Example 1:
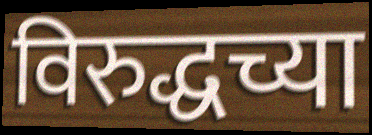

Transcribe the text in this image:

विरुद्धच्या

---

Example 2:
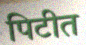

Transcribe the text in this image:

पिटीत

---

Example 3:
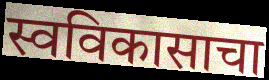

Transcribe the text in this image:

स्वविकासाचा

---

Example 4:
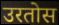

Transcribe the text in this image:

उरतोस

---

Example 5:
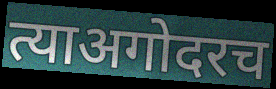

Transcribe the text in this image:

त्याअगोदरच